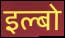
इल्बो